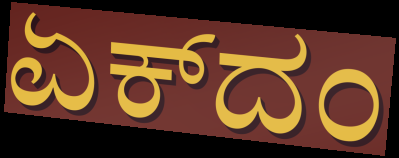
ಏಕ್‌ದಂ